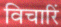
विचारिं